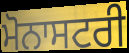
ਮੋਨਾਸਟਰੀ